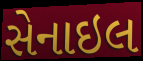
સેનાઇલ